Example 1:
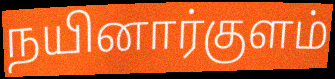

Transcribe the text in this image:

நயினார்குளம்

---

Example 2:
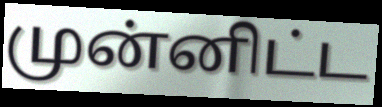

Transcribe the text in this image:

முன்னிட்ட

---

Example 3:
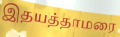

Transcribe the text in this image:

இதயத்தாமரை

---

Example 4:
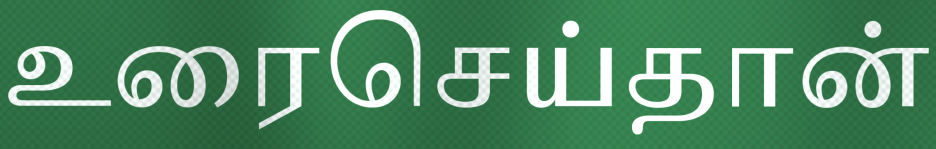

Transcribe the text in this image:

உரைசெய்தான்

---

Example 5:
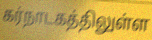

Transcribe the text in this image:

கர்நாடகத்திலுள்ள